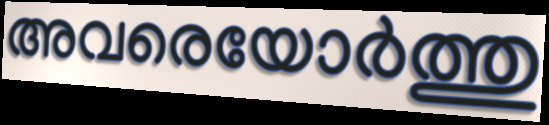
അവരെയോർത്തു